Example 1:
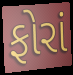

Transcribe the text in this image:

ફોરાં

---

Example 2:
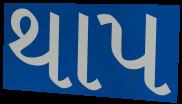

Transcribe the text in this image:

થાપ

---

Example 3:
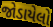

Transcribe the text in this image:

જોડાયેલો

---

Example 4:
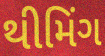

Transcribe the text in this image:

થીમિંગ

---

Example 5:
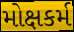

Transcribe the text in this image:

મોક્ષકર્મ